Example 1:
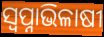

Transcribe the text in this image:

ସ୍ଵପ୍ନାଭିଳାଷୀ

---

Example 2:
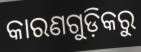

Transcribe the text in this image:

କାରଣଗୁଡ଼ିକରୁ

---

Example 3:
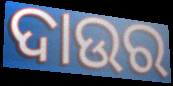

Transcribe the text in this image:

ଦାଉର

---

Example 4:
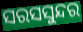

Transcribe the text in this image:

ସରସସୁନ୍ଦର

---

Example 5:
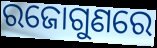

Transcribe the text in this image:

ରଜୋଗୁଣରେ